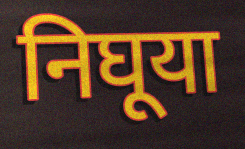
निघूया